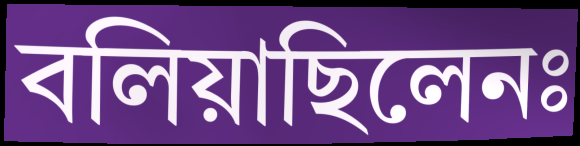
বলিয়াছিলেনঃ